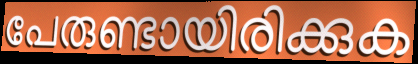
പേരുണ്ടായിരിക്കുക